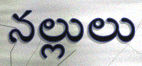
నల్లులు